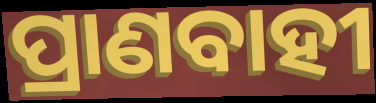
ପ୍ରାଣବାହୀ